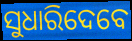
ସୁଧାରିଦେବେ